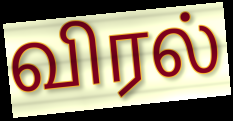
விரல்